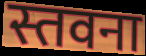
स्तवना